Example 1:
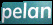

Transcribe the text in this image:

pelan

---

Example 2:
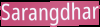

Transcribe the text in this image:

Sarangdhar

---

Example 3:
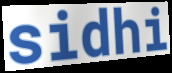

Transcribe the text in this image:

sidhi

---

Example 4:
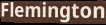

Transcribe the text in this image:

Flemington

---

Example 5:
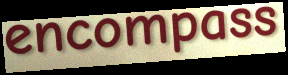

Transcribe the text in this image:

encompass